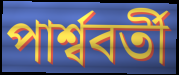
পার্শ্ববর্তী